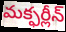
మక్ఫర్లీన్